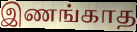
இணங்காத